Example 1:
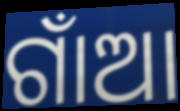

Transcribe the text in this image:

ଗାଁଆ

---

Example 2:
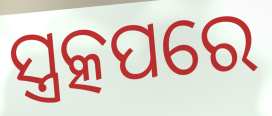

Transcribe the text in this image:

ସ୍ତ୍ରତ୍କପରେ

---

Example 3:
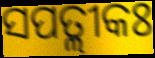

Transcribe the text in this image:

ସପତ୍ଲୀକଃ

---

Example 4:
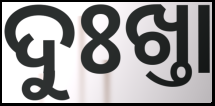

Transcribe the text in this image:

ଦୁଃଖ୍ତା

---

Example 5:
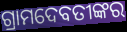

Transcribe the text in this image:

ଗ୍ରାମଦେବତୀଙ୍କର